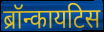
ब्रॉन्कायटिस